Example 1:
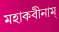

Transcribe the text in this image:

মহাকবীনাম্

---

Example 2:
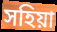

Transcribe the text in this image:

সহিয়া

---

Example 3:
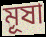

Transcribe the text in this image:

মূষা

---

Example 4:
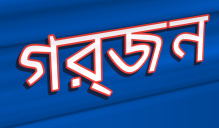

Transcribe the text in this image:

গর্‍জন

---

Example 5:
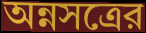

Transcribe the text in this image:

অন্নসত্রের